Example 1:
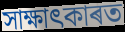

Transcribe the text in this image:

সাক্ষাৎকাৰত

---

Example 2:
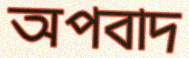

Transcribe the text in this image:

অপবাদ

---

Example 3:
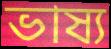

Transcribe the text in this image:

ভাষ্য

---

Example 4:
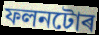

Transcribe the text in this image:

ফলনটোৰ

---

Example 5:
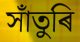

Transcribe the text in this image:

সাঁতুৰি